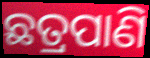
ଛତ୍ରପାଣି